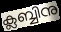
ക്ലബ്ബിനു